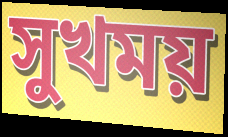
সুখময়